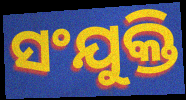
ସଂଯୁକ୍ତି